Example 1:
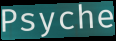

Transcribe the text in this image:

Psyche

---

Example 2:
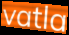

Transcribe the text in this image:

vatla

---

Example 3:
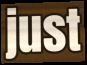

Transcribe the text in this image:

just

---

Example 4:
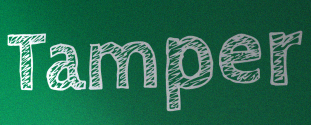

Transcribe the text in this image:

Tamper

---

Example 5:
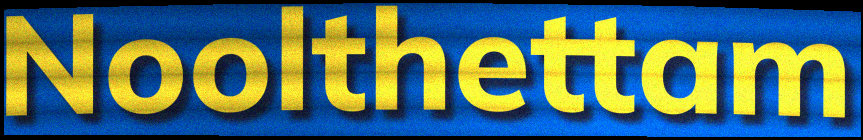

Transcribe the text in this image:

Noolthettam